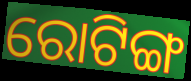
ରୋଟିଙ୍ଗ